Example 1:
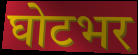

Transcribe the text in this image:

घोटभर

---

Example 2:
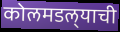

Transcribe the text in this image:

कोलमडल्याची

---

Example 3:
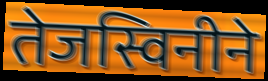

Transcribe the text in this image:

तेजस्विनीने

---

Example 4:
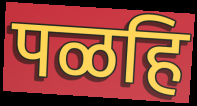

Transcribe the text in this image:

पळहि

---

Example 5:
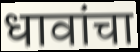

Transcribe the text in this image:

धावांचा